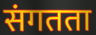
संगतता